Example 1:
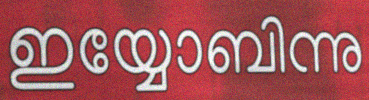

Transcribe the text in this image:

ഇയ്യോബിന്നു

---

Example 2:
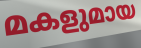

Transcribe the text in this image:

മകളുമായ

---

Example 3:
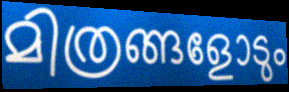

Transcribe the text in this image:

മിത്രങ്ങളോടും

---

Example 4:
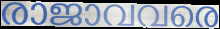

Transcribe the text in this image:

രാജാവവരെ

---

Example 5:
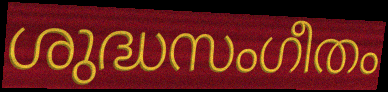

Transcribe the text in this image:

ശുദ്ധസംഗീതം